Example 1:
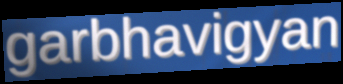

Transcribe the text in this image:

garbhavigyan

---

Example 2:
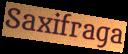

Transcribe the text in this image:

Saxifraga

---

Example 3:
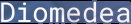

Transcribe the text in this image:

Diomedea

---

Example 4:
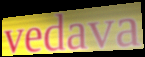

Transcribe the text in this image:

vedava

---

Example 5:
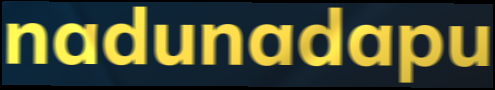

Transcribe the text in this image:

nadunadapu